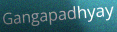
Gangapadhyay